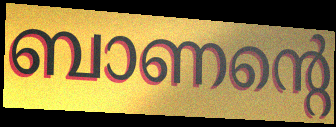
ബാണന്റെ